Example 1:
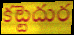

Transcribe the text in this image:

కట్టెదుర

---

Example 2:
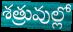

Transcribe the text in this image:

శత్రువుల్లో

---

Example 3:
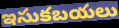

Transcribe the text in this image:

ఇసుకబయలు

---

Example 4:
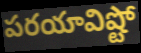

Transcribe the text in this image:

పరయావిష్టో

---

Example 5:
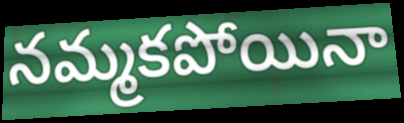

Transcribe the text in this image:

నమ్మకపోయినా